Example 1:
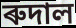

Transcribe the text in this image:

ৰুদাল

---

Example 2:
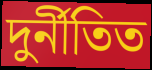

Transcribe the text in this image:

দুৰ্নীতিত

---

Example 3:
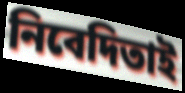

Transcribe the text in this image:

নিবেদিতাই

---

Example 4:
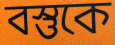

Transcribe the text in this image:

বস্তুকে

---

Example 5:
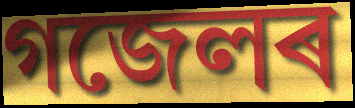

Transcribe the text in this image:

গজেলৰ